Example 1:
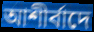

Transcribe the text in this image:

আশীর্বাদে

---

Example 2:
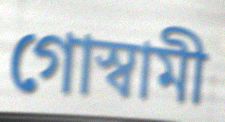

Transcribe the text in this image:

গোস্বামী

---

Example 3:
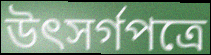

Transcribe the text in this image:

উৎসর্গপত্রে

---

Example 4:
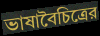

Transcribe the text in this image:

ভাষাবৈচিত্রের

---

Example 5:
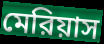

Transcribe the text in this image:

মেরিয়াস